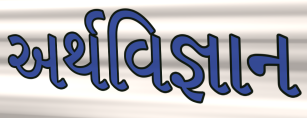
અર્થવિજ્ઞાન